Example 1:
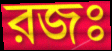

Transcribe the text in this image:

রজঃ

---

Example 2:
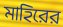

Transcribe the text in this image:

মাহিরের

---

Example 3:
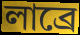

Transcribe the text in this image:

লাব্রে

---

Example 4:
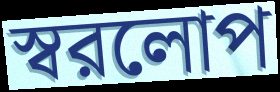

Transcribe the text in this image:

স্বরলোপ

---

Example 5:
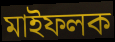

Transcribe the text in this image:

মাইফলক